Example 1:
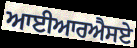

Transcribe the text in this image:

ਆਈਆਰਐਸਏ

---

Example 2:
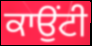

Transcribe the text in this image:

ਕਾਉਂਟੀ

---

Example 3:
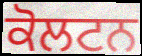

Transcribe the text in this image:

ਕੋਲਟਨ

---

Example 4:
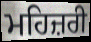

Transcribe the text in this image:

ਮਹਿਜ਼ਰੀ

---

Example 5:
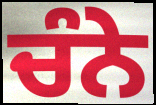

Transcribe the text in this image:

ਚੰਨੇ